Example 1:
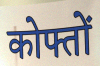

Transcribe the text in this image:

कोफ्तों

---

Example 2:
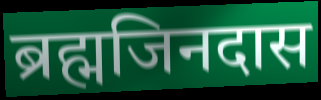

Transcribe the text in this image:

ब्रह्मजिनदास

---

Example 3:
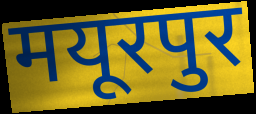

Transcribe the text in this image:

मयूरपुर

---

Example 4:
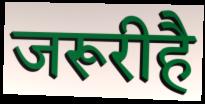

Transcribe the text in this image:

जरूरीहै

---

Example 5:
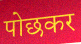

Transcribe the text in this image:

पोछकर